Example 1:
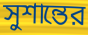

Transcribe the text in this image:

সুশান্তের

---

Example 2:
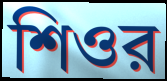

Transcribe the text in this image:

শিওর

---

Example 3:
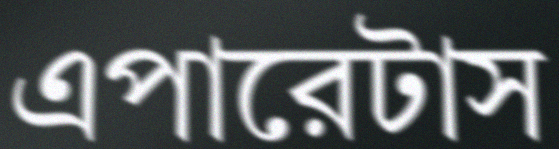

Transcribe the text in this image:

এপারেটাস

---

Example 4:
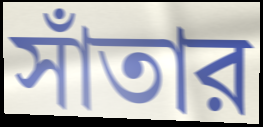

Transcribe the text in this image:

সাঁতার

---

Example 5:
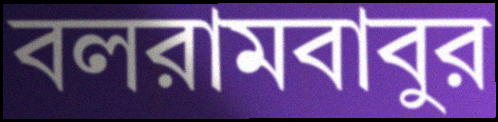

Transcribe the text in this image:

বলরামবাবুর